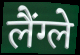
लैंग्ले